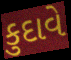
કુદાવે